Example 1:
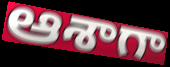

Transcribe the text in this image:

ఆశాగా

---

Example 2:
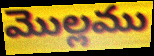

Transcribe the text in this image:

మొల్లము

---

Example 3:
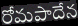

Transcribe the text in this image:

రోమపాదేన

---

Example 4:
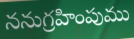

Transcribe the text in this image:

ననుగ్రహింపుము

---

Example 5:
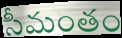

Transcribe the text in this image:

సీమంతం